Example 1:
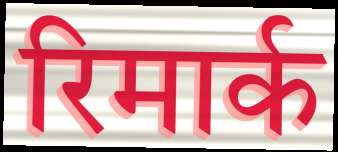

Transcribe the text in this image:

रिमार्क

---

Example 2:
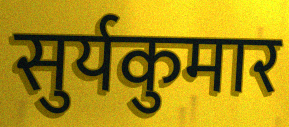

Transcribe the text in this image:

सुर्यकुमार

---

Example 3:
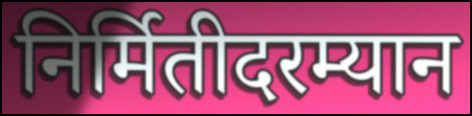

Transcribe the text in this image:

निर्मितीदरम्यान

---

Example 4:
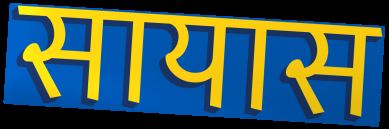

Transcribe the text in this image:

सायास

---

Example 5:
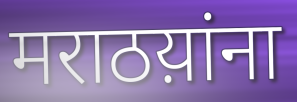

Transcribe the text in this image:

मराठय़ांना